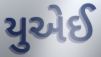
યુએઈ